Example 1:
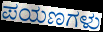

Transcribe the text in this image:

ಪಯಣಗಳು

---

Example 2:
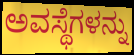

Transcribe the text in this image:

ಅವಸ್ಥೆಗಳನ್ನು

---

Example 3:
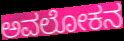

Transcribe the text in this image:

ಅವಲೋಕನ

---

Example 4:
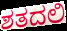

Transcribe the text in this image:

ಶತದಲಿ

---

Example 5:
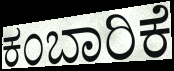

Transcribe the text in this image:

ಕಂಬಾರಿಕೆ